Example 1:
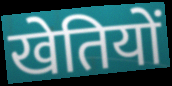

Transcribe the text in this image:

खेतियों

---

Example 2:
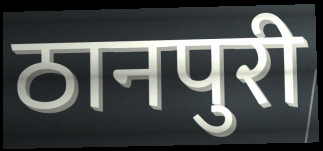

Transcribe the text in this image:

ठानपुरी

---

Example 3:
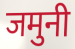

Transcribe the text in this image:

जमुनी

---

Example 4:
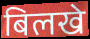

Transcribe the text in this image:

बिलखे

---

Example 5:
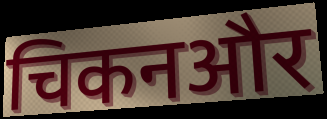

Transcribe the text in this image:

चिकनऔर